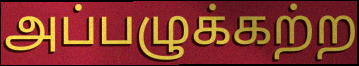
அப்பழுக்கற்ற